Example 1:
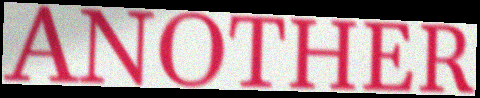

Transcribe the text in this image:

ANOTHER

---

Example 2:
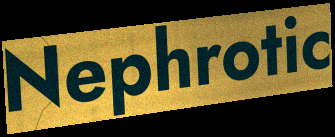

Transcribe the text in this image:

Nephrotic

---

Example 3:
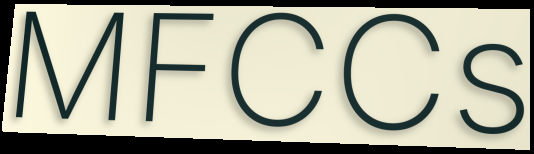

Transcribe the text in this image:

MFCCs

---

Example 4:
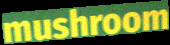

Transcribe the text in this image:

mushroom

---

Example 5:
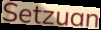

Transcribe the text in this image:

Setzuan